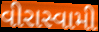
વીરાસ્વામી